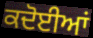
ਕਦੋਈਆਂ